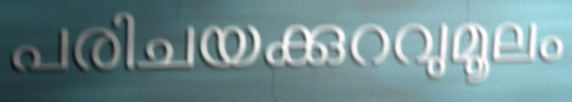
പരിചയക്കുറവുമൂലം